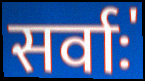
सर्वाः॑